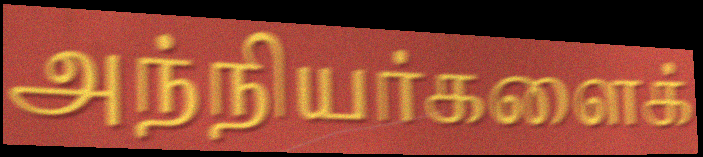
அந்நியர்களைக்